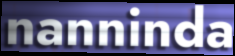
nanninda